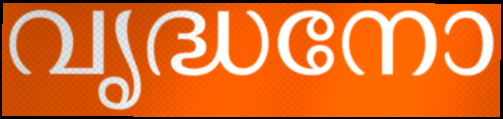
വൃദ്ധനോ